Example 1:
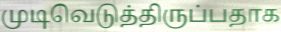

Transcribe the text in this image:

முடிவெடுத்திருப்பதாக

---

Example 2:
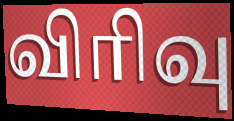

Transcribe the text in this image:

விரிவு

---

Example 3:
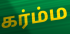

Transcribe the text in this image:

கர்ம்ம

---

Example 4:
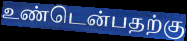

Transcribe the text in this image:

உண்டென்பதற்கு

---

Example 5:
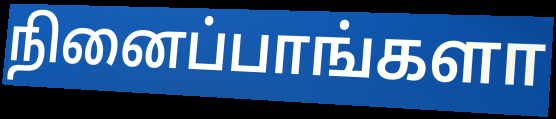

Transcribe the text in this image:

நினைப்பாங்களா